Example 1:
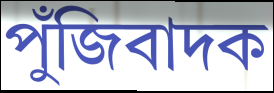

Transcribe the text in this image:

পুঁজিবাদক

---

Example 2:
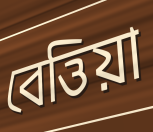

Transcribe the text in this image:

বেত্তিয়া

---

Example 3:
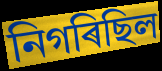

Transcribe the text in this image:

নিগৰিছিল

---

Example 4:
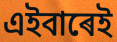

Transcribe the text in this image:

এইবাৰেই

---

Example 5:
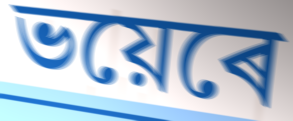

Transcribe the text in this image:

ভয়েৰে